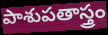
పాశుపతాస్త్రం